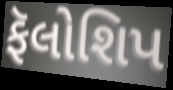
ફૅલોશિપ